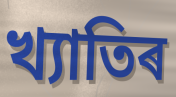
খ্যাতিৰ